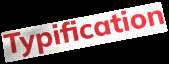
Typification